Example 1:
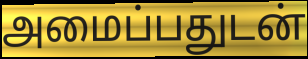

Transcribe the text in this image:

அமைப்பதுடன்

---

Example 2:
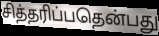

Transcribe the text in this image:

சித்தரிப்பதென்பது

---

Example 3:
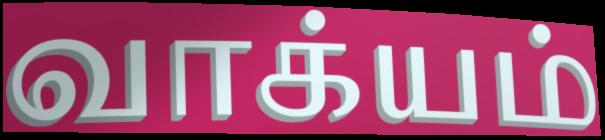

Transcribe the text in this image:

வாக்யம்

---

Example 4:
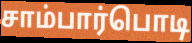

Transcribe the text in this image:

சாம்பார்பொடி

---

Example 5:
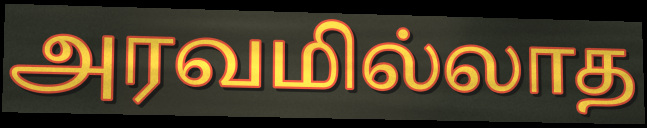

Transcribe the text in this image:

அரவமில்லாத